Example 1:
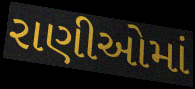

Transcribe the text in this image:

રાણીઓમાં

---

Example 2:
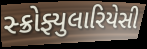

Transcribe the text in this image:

સ્ક્રોફ્યુલારિયેસી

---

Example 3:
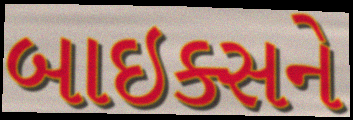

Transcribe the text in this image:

બાઇક્સને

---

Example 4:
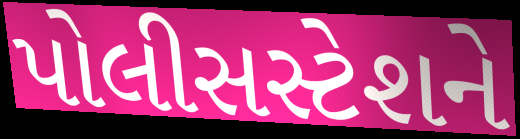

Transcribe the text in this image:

પોલીસસ્ટેશને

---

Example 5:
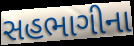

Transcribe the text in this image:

સહભાગીના